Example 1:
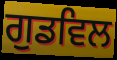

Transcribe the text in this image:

ਗੁਡਵਿਲ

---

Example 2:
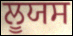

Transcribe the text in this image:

ਲੂਯਸ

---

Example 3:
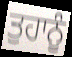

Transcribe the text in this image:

ਤੁਹਾਨੂੰ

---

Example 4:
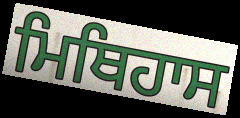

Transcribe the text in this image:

ਮਿਥਿਹਾਸ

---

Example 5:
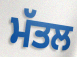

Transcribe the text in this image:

ਮੱਤਲ